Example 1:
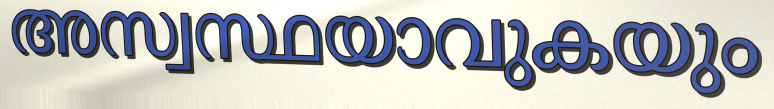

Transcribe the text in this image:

അസ്വസ്ഥയാവുകയും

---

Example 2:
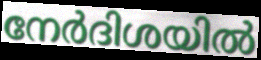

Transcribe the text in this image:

നേർദിശയിൽ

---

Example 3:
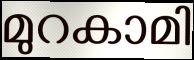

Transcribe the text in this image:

മുറകാമി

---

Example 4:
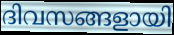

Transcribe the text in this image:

ദിവസങ്ങളായി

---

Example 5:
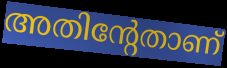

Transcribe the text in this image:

അതിന്റേതാണ്